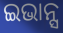
ଇଭାନ୍ସ